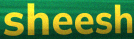
sheesh